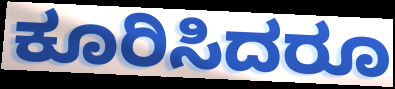
ಕೂರಿಸಿದರೂ